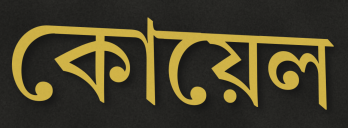
কোয়েল